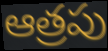
ఆత్రపు